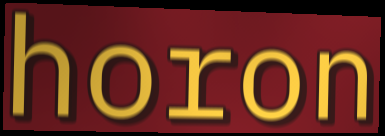
horon